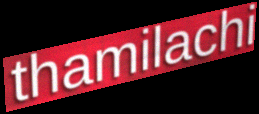
thamilachi